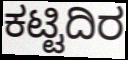
ಕಟ್ಟಿದಿರ